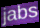
jabs